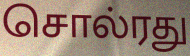
சொல்ரது